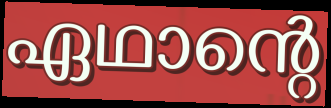
ഏഥാന്റെ